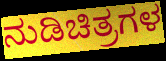
ನುಡಿಚಿತ್ರಗಳ